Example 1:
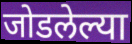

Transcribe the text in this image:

जोडलेल्या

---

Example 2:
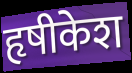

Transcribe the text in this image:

हृषीकेश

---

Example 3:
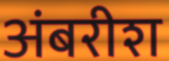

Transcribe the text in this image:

अंबरीश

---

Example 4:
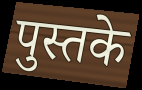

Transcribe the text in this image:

पुस्तके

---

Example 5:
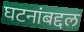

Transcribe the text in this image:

घटनांबद्दल